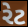
રેટ